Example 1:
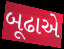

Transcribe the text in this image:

બૂઢાએ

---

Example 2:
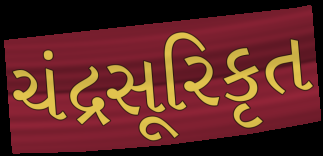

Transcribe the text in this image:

ચંદ્રસૂરિકૃત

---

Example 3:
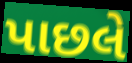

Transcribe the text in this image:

પાછલે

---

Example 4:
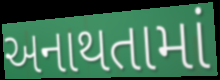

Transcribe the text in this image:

અનાથતામાં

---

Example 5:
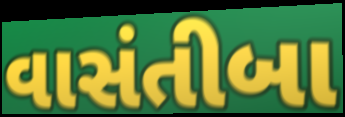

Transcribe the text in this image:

વાસંતીબા